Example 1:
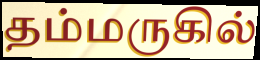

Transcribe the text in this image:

தம்மருகில்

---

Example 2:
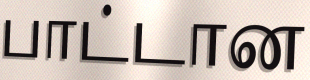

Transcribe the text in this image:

பாட்டான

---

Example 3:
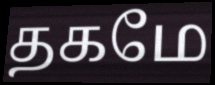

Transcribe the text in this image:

தகமே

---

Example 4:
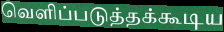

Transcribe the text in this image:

வெளிப்படுத்தக்கூடிய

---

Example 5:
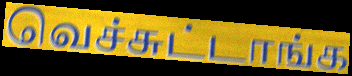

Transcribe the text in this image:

வெச்சுட்டாங்க